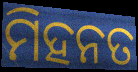
ମିହନତ